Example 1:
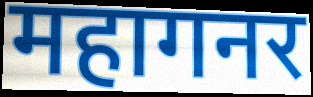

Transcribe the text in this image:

महागनर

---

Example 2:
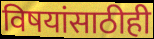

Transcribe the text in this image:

विषयांसाठीही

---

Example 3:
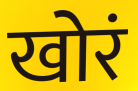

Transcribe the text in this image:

खोरं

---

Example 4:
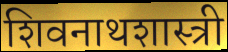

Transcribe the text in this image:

शिवनाथशास्त्री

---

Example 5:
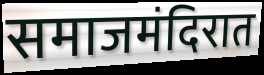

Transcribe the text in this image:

समाजमंदिरात